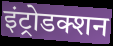
इंट्रोडक्शन